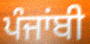
ਪੰਜਾਂਬੀ